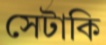
সেটাকি